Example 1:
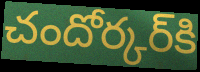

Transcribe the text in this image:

చందోర్కర్‌కి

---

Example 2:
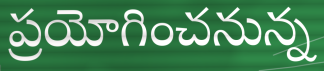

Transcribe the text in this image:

ప్రయోగించనున్న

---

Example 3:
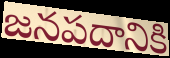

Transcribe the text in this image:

జనపదానికి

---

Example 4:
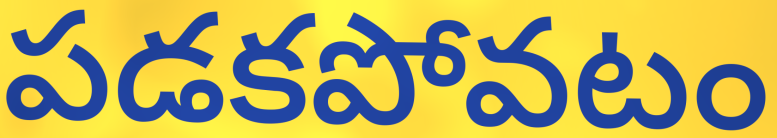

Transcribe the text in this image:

పడకపోవటం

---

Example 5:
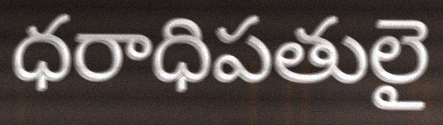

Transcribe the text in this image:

ధరాధిపతులై